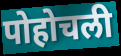
पोहोचली